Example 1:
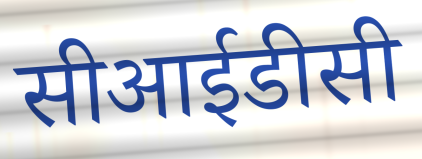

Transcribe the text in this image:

सीआईडीसी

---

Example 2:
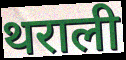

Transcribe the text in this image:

थराली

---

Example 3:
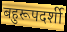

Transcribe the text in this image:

बहुरूपदर्शी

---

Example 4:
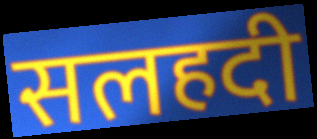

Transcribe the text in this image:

सलहदी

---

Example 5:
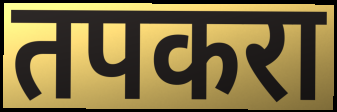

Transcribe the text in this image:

तपकरा